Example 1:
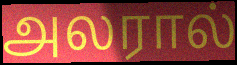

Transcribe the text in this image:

அலரால்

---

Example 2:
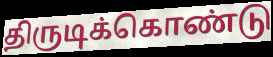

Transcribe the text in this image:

திருடிக்கொண்டு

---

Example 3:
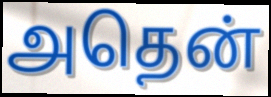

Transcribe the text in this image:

அதென்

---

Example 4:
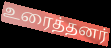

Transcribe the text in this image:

உரைத்தனர்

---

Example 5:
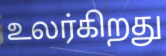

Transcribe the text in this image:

உலர்கிறது